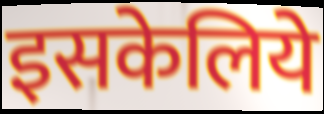
इसकेलिये